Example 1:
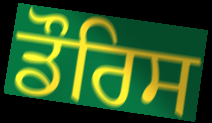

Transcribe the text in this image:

ਡੌਰਿਸ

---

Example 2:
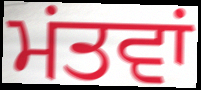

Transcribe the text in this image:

ਮਂਤਵਾਂ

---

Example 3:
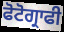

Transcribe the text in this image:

ਫੋਟੋਗ੍ਰਾਫੀ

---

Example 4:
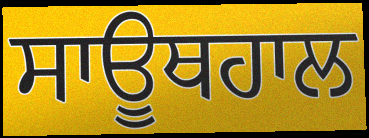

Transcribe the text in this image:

ਸਾਊਥਹਾਲ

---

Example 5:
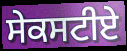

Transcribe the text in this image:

ਸੇਕਸਟੀਏ